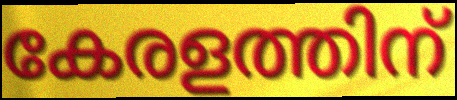
കേരളത്തിന്